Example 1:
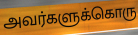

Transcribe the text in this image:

அவர்களுக்கொரு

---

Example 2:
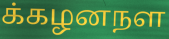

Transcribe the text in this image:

க்கழனநள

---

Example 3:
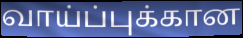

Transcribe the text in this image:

வாய்ப்புக்கான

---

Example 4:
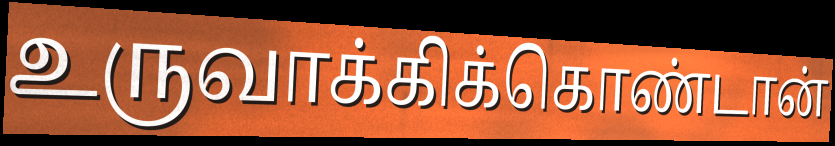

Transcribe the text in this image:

உருவாக்கிக்கொண்டான்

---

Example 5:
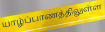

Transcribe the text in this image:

யாழ்ப்பாணத்திலுள்ள